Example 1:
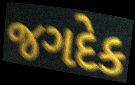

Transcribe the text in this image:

જગદેક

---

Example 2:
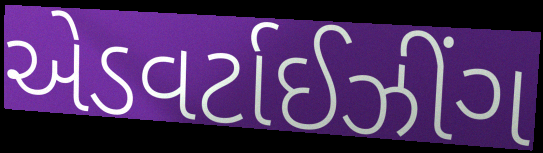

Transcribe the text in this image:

એડવર્ટાઈઝીંગ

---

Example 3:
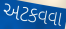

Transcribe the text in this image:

અટકવવા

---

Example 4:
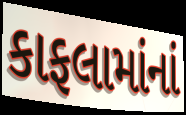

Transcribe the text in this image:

કાફલામાંનાં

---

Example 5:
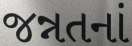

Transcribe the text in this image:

જન્નતનાં